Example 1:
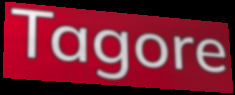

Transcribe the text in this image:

Tagore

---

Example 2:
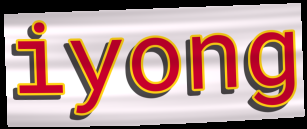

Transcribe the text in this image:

iyong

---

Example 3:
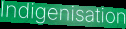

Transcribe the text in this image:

Indigenisation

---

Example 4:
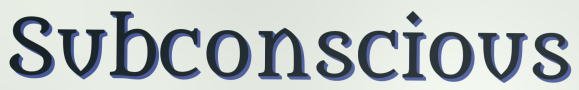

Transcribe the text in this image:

Subconscious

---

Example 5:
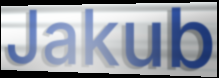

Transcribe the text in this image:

Jakub